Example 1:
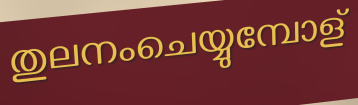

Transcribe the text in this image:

തുലനംചെയ്യുമ്പോള്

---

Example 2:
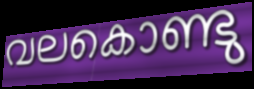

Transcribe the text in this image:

വലകൊണ്ടു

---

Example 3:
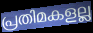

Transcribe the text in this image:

പ്രതിമകളല്ല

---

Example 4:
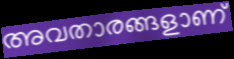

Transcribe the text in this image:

അവതാരങ്ങളാണ്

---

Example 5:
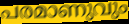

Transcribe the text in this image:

പരമാണുവും